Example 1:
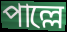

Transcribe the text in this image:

পাল্লে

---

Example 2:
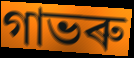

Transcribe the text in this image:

গাভৰু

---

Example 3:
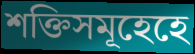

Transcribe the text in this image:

শক্তিসমূহেহে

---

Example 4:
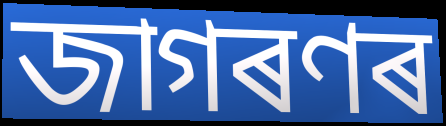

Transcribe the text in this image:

জাগৰণৰ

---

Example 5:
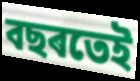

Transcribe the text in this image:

বছৰতেই